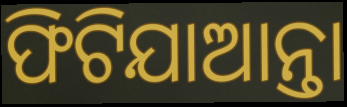
ଫିଟିଯାଆନ୍ତା